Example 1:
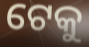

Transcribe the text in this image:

ଟେକୁ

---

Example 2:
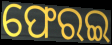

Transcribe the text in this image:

ଫେରଇ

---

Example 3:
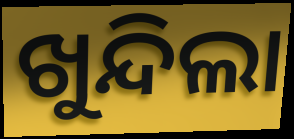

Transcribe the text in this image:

ଖୁନ୍ଦିଲା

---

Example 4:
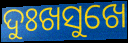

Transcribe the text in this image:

ଦୁଃଖସୁଖେ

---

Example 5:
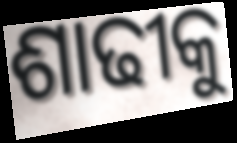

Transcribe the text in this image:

ଶାଢୀକୁ